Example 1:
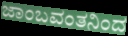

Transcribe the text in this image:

ಜಾಂಬವಂತನಿಂದ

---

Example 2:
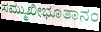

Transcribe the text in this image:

ಸಮ್ಮುಖೀಭೂತಾನಂ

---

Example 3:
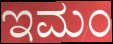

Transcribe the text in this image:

ಇಮಂ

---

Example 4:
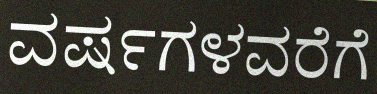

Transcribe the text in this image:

ವರ್ಷಗಳವರೆಗೆ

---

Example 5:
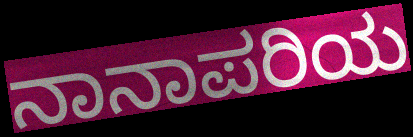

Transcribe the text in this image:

ನಾನಾಪರಿಯ